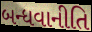
બન્ધવાનીતિ